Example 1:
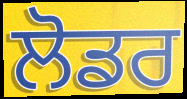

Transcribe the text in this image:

ਲੋਡਰ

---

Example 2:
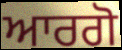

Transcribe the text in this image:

ਆਰਗੋ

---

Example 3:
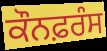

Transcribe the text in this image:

ਕੌਨਫ਼ਰੰਸ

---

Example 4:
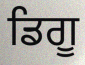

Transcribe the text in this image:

ਡਿਗੂ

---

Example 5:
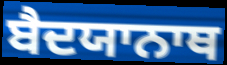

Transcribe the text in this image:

ਬੈਦਯਾਨਾਥ